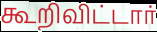
கூறிவிட்டார்